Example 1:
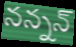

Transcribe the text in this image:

నన్నన్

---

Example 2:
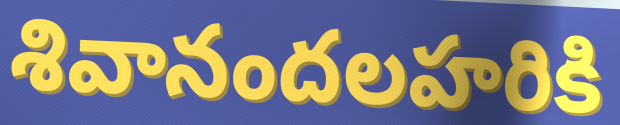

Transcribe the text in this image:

శివానందలహరికి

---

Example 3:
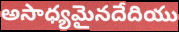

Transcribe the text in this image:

అసాధ్యమైనదేదియు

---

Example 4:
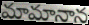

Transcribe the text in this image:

మామానాన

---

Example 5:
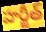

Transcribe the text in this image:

హర్జీత్